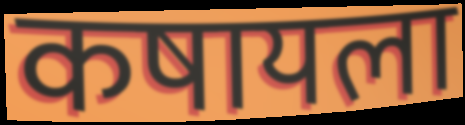
कषायला